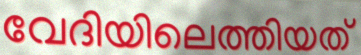
വേദിയിലെത്തിയത്